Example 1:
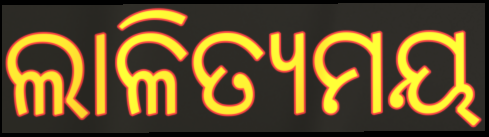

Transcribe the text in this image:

ଲାଳିତ୍ୟମୟ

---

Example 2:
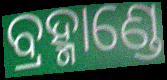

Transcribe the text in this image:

ବ୍ରହ୍ମାଣ୍ଡେ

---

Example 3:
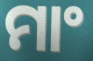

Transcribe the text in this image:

ମାଂ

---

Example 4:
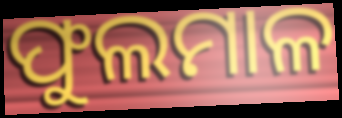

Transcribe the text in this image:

ଫୁଲମାଳ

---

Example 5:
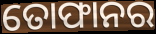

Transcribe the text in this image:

ତୋଫାନର